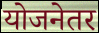
योजनेतर